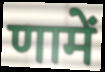
णामें